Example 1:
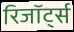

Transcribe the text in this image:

रिजॉर्ट्स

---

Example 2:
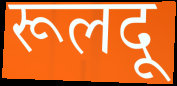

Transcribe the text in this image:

रूलदू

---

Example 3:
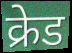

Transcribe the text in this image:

क्रेड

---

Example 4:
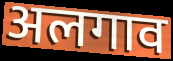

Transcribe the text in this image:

अलगाव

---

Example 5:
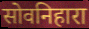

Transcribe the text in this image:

सोवनिहारा